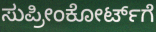
ಸುಪ್ರೀಂಕೋರ್ಟ್‌ಗೆ